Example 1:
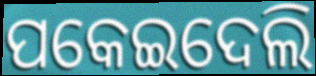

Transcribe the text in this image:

ପକେଇଦେଲି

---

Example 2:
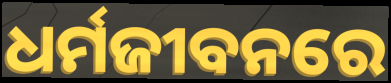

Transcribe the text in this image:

ଧର୍ମଜୀବନରେ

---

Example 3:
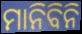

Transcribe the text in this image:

ମାନିବିନି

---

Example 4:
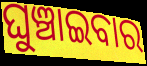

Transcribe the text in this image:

ଘୁଞ୍ଚାଇବାର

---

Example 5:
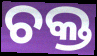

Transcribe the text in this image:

ଚକ୍ତ